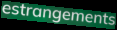
estrangements